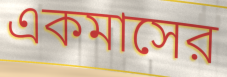
একমাসের